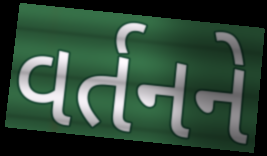
વર્તનને